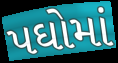
પઘોમાં